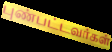
புண்பட்டவர்கள்